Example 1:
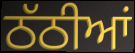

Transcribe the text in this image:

ਠੱਠੀਆਂ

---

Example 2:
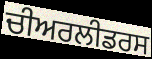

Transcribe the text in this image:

ਚੀਅਰਲੀਡਰਸ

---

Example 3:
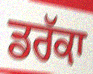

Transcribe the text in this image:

ਡਰੱਕਾ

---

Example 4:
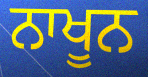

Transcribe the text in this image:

ਨਾਖੂਨ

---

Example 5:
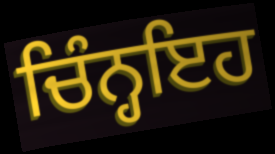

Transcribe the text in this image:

ਚਿੰਨ੍ਹਇਹ